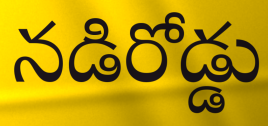
నడిరోడ్డు